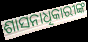
ଶାସନାଧିକାରୀଙ୍କ